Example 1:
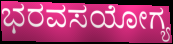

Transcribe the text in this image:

ಭರವಸಯೋಗ್ಯ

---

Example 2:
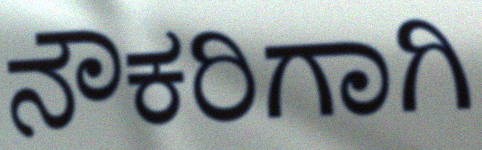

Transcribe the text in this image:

ನೌಕರಿಗಾಗಿ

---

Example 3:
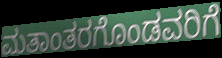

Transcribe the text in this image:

ಮತಾಂತರಗೊಂಡವರಿಗೆ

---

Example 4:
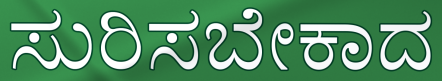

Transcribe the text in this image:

ಸುರಿಸಬೇಕಾದ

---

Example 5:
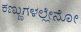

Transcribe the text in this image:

ಕಣ್ಣುಗಳಲ್ಲೇನೋ